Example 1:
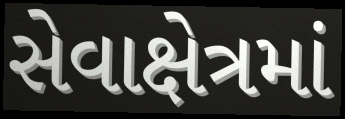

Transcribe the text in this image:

સેવાક્ષેત્રમાં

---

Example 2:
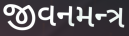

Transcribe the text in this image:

જીવનમન્ત્ર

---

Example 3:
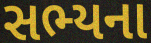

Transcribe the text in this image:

સભ્યના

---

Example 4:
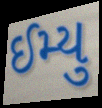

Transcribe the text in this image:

ઈમ્યુ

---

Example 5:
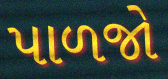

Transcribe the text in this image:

પાળજો